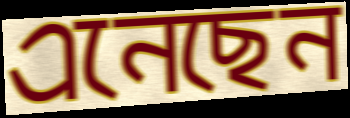
এনেছেন